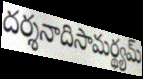
దర్శనాదిసామర్థ్యమ్